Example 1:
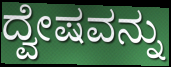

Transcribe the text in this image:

ದ್ವೇಷವನ್ನು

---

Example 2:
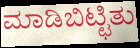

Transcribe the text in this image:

ಮಾಡಿಬಿಟ್ಟಿತು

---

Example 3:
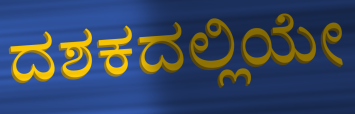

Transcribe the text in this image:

ದಶಕದಲ್ಲಿಯೇ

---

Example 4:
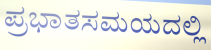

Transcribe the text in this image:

ಪ್ರಭಾತಸಮಯದಲ್ಲಿ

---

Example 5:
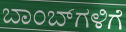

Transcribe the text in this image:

ಬಾಂಬ್‌ಗಳಿಗೆ